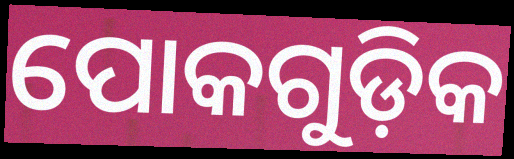
ପୋକଗୁଡ଼ିକ